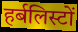
हर्बलिस्टों